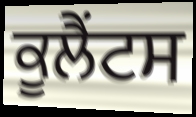
ਕੂਲੈਂਟਸ